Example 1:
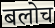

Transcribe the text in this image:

बलोच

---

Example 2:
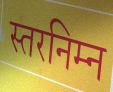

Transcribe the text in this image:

स्तरनिम्न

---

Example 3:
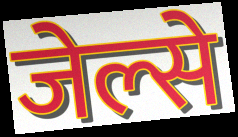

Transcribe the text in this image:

जेल्से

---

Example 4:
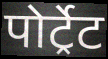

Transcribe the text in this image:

पोर्ट्रेट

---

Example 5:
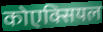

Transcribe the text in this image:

कोएक्सियल